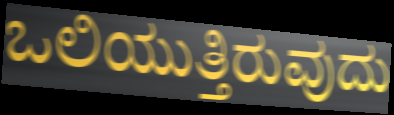
ಒಲಿಯುತ್ತಿರುವುದು